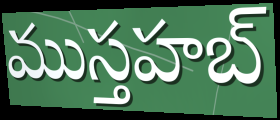
ముస్తహబ్